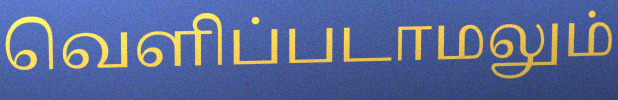
வெளிப்படாமலும்